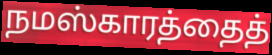
நமஸ்காரத்தைத்